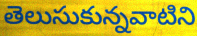
తెలుసుకున్నవాటిని